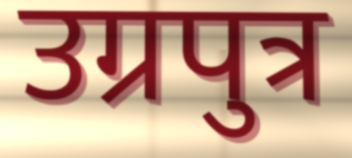
उग्रपुत्र